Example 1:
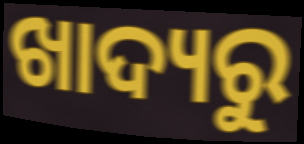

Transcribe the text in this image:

ଖାଦ୍ୟରୁ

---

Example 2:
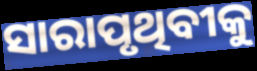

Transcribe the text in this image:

ସାରାପୃଥିବୀକୁ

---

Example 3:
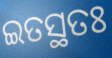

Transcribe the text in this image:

ଇତସ୍ଥତଃ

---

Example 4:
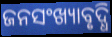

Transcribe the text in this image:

ଜନସଂଖ୍ୟାବୃଦ୍ଧି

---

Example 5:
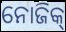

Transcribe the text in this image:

ନୋଜିକ୍